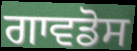
ਗਾਵਡੋਸ